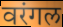
वरंगल